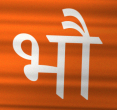
भौ